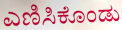
ಎಣಿಸಿಕೊಂಡು